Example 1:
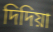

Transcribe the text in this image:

দিদিয়া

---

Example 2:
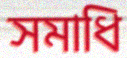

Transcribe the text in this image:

সমাধি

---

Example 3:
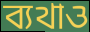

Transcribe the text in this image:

ব্যথাও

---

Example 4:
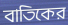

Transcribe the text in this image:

বাতিকের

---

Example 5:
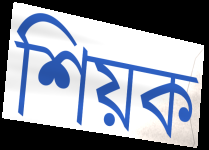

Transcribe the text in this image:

শিয়ক